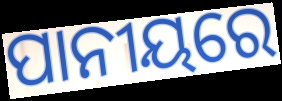
ପାନୀୟରେ